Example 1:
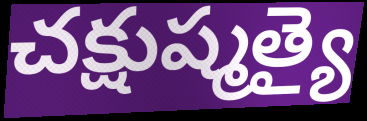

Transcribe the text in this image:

చక్షుష్మత్యై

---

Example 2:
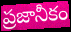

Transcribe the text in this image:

ప్రజానీకం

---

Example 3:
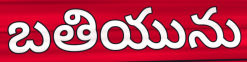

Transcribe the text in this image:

బతియును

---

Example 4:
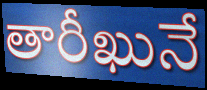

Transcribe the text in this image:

తారీఖునే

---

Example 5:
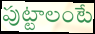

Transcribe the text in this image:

పుట్టాలంటే